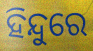
ହିନ୍ଦୁରେ